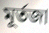
মূর্তজা